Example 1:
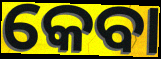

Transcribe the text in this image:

କେବା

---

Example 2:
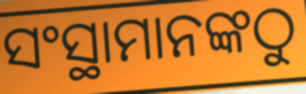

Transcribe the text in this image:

ସଂସ୍ଥାମାନଙ୍କଠୁ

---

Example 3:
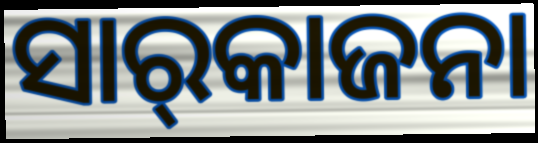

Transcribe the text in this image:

ସାର୍‌କାଜନା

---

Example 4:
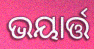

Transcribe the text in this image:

ଭୟାର୍ତ୍ତ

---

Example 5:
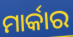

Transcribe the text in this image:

ମାର୍କାର